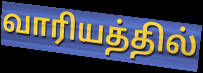
வாரியத்தில்